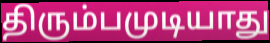
திரும்பமுடியாது